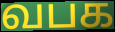
வபக